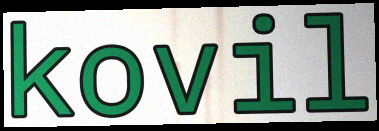
kovil